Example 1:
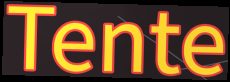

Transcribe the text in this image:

Tente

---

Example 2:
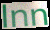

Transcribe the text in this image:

Inn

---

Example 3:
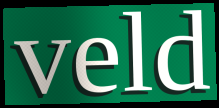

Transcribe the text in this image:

veld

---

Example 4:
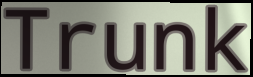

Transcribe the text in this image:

Trunk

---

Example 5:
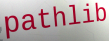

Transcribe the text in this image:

pathlib